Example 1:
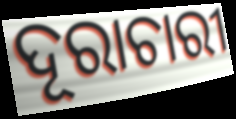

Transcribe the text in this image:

ଦୂରାଚାରୀ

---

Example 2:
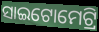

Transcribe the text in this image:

ସାଇଟୋମେଟ୍ରି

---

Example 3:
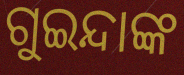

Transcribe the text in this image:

ଗୁଇନ୍ଦାଙ୍କ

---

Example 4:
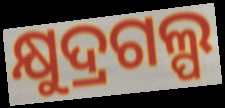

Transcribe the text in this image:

କ୍ଷୁଦ୍ରଗଲ୍ପ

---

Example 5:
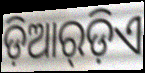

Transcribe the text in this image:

ଡ଼ିଆର୍‌ଡ଼ିଏ